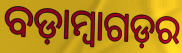
ବଡ଼ାମ୍ବାଗଡ଼ର